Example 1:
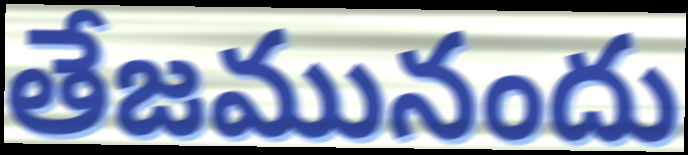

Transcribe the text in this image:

తేజమునందు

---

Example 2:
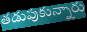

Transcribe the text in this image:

తడుపుకున్నారు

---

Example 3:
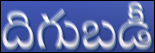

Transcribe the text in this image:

దిగుబడీ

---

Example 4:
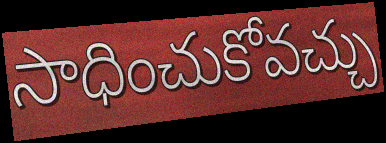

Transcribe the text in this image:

సాధించుకోవచ్చు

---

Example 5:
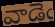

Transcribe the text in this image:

వాడెఁ